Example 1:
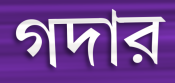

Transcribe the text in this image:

গদার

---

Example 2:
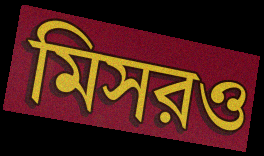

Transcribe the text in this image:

মিসরও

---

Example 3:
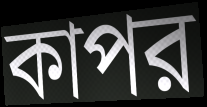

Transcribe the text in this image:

কাপর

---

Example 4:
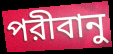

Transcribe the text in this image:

পরীবানু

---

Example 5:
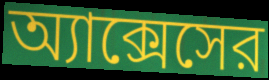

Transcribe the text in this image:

অ্যাক্সেসের